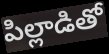
పిల్లాడితో